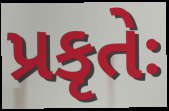
પ્રકૃતેઃ